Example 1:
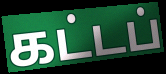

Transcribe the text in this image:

கட்டப்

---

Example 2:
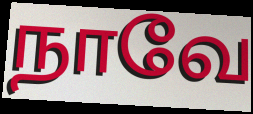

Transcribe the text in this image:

நாவே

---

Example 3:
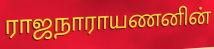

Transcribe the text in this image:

ராஜநாராயணனின்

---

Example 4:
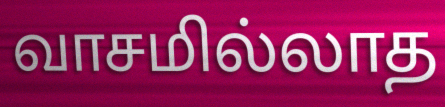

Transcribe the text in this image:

வாசமில்லாத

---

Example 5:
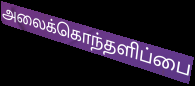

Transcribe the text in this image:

அலைக்கொந்தளிப்பை